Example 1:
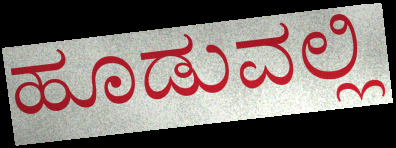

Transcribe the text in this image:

ಹೂಡುವಲ್ಲಿ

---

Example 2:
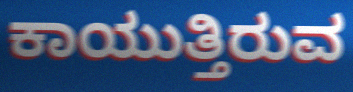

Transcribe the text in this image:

ಕಾಯುತ್ತಿರುವ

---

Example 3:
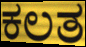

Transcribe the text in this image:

ಕಲತ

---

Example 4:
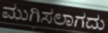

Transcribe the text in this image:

ಮುಗಿಸಲಾಗದು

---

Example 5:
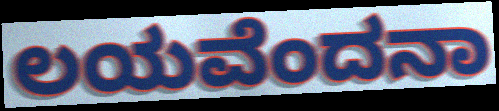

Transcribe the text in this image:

ಲಯವೆಂದನಾ